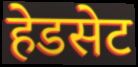
हेडसेट